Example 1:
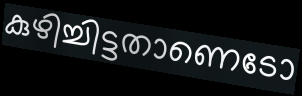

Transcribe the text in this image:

കുഴിച്ചിട്ടതാണെടോ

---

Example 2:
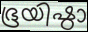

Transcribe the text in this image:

ഭൂയിഷ്ഠാ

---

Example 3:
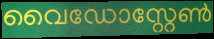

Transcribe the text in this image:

വൈഡോസ്റ്റേൺ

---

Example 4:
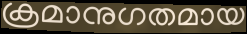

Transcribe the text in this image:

ക്രമാനുഗതമായ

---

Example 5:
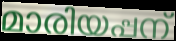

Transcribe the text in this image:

മാരിയപ്പന്